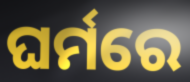
ଘର୍ମରେ